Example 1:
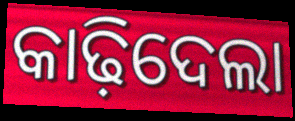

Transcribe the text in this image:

କାଢ଼ିଦେଲା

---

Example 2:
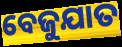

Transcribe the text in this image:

ବେଜୁଯାତ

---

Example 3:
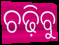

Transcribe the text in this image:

ଚଢ଼ିବୁ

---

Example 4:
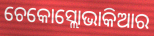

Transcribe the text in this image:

ଚେକୋସ୍ଲୋଭାକିଆର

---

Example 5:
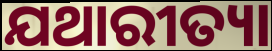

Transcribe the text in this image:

ଯଥାରୀତ୍ୟା